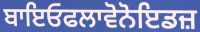
ਬਾਇਓਫਲਾਵੋਨੋਇਡਜ਼